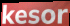
kesor